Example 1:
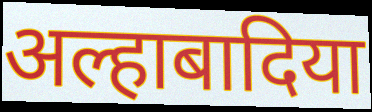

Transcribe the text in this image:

अल्हाबादिया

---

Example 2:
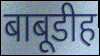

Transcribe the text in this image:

बाबूडीह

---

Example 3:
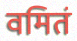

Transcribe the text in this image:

वमितं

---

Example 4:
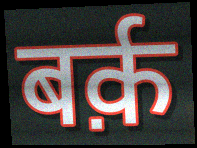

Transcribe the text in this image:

बर्क़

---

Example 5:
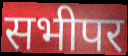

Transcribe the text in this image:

सभीपर